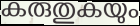
കരുതുകയും